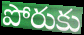
పోరుకు